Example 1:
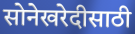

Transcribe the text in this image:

सोनेखरेदीसाठी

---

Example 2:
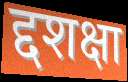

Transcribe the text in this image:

द्दशक्षा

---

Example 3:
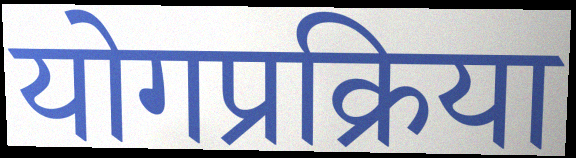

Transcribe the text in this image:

योगप्रक्रिया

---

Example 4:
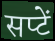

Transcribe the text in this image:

सप्टें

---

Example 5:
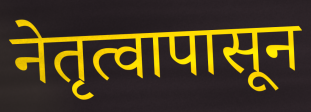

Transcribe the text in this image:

नेतृत्वापासून